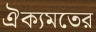
ঐক্যমতের